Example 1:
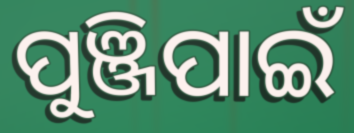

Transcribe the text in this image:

ପୁଞ୍ଜିପାଇଁ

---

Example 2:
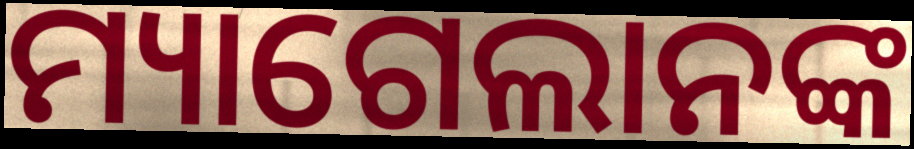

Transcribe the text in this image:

ମ୍ୟାଗେଲାନଙ୍କ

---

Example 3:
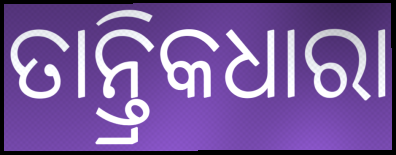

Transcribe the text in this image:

ତାନ୍ତ୍ରିକଧାରା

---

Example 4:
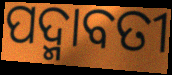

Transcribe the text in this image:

ପଦ୍ମାବତୀ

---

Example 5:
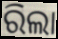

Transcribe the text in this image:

ରିଲା